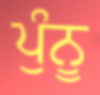
ਪੁੰਨੂ